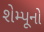
શેમ્પૂનો